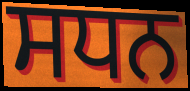
ਸਧਨ